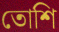
তোশি